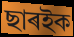
ছাৰইক